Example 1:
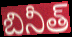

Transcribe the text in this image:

బినీత్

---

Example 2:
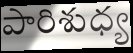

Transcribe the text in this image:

పారిశుధ్య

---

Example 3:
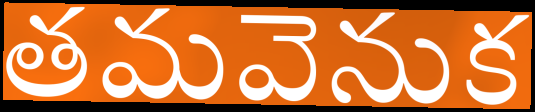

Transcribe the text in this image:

తమవెనుక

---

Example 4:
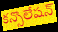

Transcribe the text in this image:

కన్సొలేషన్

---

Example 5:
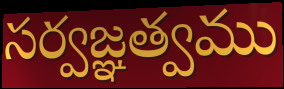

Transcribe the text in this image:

సర్వజ్ఞత్వము